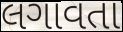
લગાવતા